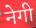
नेगी